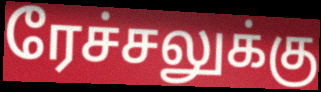
ரேச்சலுக்கு